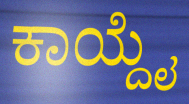
ಕಾಯ್ದೈ